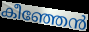
കീഞ്ഞേൻ